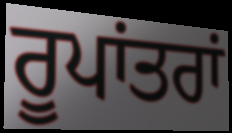
ਰੂਪਾਂਤਰਾਂ